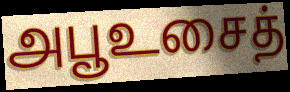
அபூஉசைத்